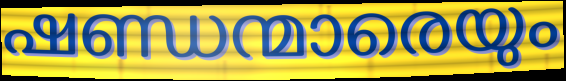
ഷണ്ഡന്മാരെയും